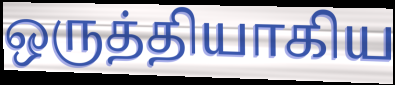
ஒருத்தியாகிய